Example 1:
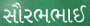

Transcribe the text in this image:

સૌરભભાઈ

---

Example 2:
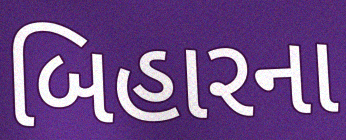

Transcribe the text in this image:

બિહારના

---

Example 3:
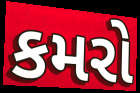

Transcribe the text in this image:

કમરો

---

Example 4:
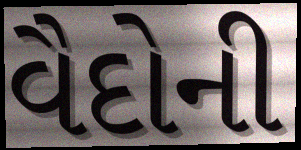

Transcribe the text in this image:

વૈદોની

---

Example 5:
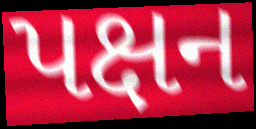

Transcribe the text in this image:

પક્ષન